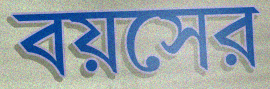
বয়সের